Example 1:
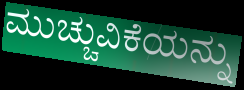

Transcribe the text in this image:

ಮುಚ್ಚುವಿಕೆಯನ್ನು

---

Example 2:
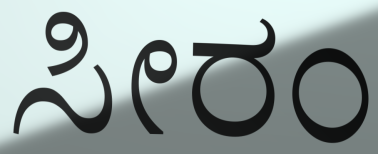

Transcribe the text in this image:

ಸೀರಂ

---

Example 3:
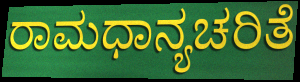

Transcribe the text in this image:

ರಾಮಧಾನ್ಯಚರಿತೆ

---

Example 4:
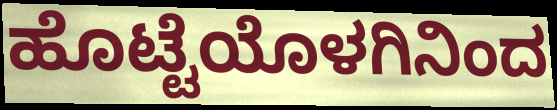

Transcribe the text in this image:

ಹೊಟ್ಟೆಯೊಳಗಿನಿಂದ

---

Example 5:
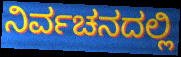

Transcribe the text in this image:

ನಿರ್ವಚನದಲ್ಲಿ